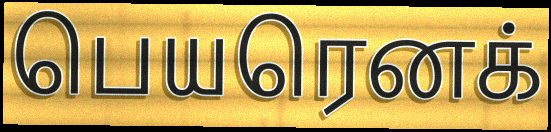
பெயரெனக்